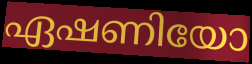
ഏഷണിയോ